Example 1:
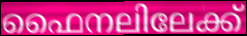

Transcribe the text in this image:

ഫൈനലിലേക്ക്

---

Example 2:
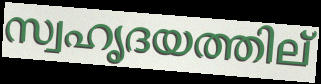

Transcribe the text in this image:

സ്വഹൃദയത്തില്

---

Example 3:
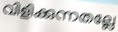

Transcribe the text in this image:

വിളിക്കുന്നതല്ലേ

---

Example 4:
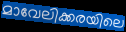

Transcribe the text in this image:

മാവേലിക്കരയിലെ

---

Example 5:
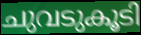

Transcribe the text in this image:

ചുവടുകൂടി